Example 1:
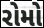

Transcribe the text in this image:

રોમો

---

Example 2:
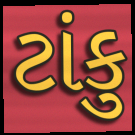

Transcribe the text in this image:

ટાંકુ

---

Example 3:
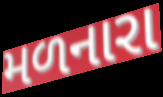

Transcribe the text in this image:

મળનારા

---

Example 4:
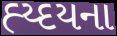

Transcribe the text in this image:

હ્ય્દયના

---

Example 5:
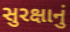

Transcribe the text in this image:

સુરક્ષાનું